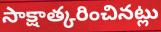
సాక్షాత్కరించినట్లు